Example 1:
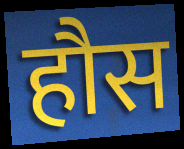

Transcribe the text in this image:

हौस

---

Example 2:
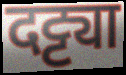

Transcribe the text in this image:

दट्ट्या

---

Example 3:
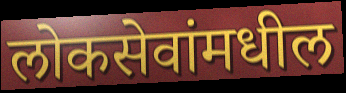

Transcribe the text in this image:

लोकसेवांमधील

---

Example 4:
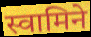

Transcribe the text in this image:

स्वामिने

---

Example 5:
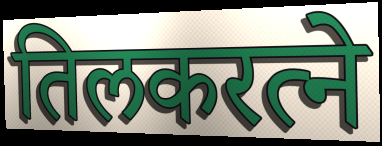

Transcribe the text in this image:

तिलकरत्ने